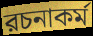
রচনাকর্ম